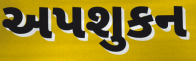
અપશુકન